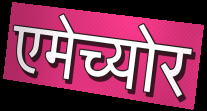
एमेच्योर